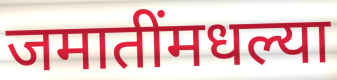
जमातींमधल्या